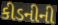
કીડનીની